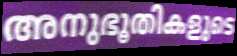
അനുഭൂതികളുടെ